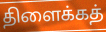
திளைக்கத்